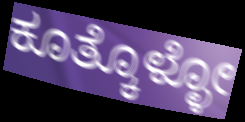
ಕೂತ್ಕೊಳ್ಳೋ